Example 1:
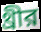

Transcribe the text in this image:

থ্রীর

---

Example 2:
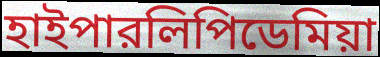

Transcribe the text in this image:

হাইপারলিপিডেমিয়া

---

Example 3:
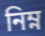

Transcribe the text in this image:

নিম্ন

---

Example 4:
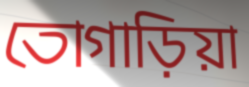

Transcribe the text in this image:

তোগাড়িয়া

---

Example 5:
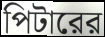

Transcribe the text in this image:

পিটারের